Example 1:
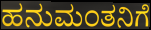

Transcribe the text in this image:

ಹನುಮಂತನಿಗೆ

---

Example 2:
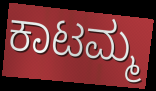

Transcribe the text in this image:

ಕಾಟಮ್ಮ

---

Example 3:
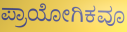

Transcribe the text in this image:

ಪ್ರಾಯೋಗಿಕವೂ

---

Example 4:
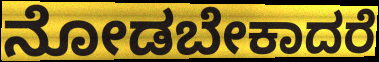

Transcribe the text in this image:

ನೋಡಬೇಕಾದರೆ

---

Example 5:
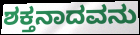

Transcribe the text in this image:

ಶಕ್ತನಾದವನು